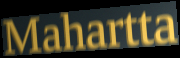
Mahartta